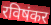
रविषंकर